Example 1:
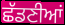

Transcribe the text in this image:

ਛੱਡਣੀਆਂ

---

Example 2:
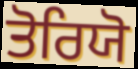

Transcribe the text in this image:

ਤੋਰਿਯੋ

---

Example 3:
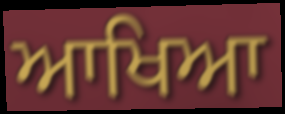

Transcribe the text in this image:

ਆਖਿਆ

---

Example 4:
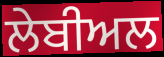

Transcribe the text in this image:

ਲੇਬੀਅਲ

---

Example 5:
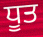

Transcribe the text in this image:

ਧੂਤ